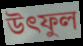
উৎফুল